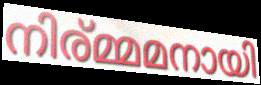
നിര്മ്മമനായി